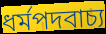
ধর্মপদবাচ্য